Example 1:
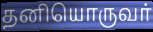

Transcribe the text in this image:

தனியொருவர்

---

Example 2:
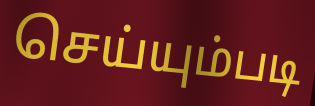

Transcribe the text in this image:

செய்யும்படி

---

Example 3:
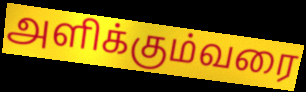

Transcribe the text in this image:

அளிக்கும்வரை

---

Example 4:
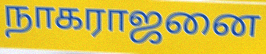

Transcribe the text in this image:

நாகராஜனை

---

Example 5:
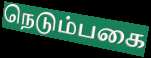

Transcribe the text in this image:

நெடும்பகை